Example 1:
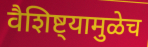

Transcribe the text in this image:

वैशिष्ट्यामुळेच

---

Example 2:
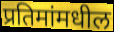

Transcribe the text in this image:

प्रतिमांमधील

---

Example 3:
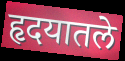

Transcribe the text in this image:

हृदयातले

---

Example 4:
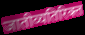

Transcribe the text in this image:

जातीव्यतिरिक्त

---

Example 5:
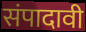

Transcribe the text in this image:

संपादावी